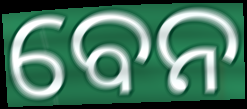
ବେନ